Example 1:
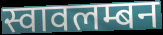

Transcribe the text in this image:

स्वावलम्बन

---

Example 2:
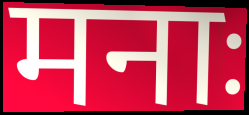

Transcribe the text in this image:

मनाः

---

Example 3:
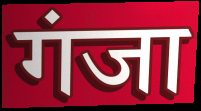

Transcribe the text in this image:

गंजा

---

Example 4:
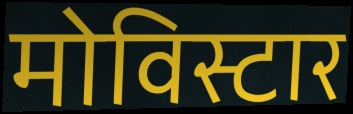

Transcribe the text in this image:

मोविस्टार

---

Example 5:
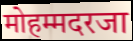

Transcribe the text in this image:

मोहम्मदरजा